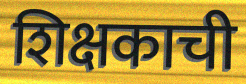
शिक्षकाची